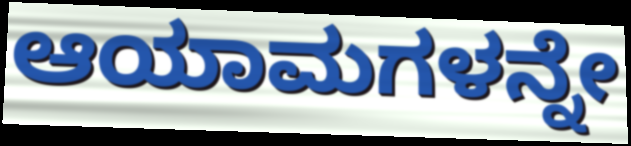
ಆಯಾಮಗಳನ್ನೇ